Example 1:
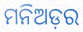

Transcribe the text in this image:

ମନିଅଡ଼ର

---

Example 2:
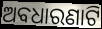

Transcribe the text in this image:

ଅବଧାରଣାଟି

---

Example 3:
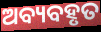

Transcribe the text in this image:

ଅବ୍ୟବହୃତ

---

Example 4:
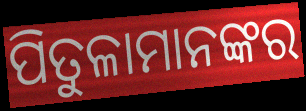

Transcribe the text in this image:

ପିତୁଳାମାନଙ୍କର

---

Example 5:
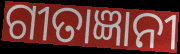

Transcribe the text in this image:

ଗୀତାଜ୍ଞାନୀ